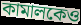
কামালকেও